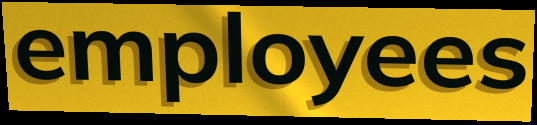
employees